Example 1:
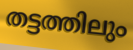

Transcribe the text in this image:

തട്ടത്തിലും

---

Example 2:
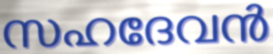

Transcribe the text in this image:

സഹദേവൻ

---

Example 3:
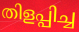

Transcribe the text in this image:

തിളപ്പിച്ച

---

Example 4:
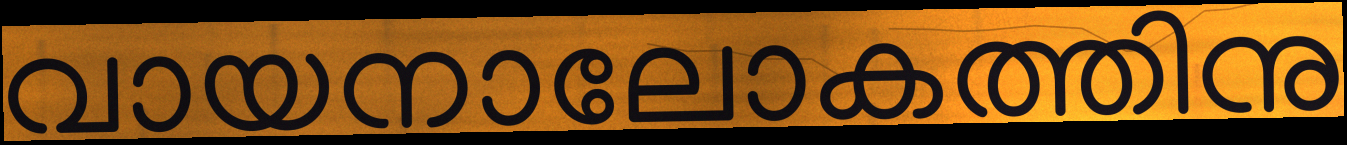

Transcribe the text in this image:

വായനാലോകത്തിനു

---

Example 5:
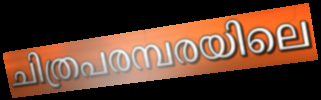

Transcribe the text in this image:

ചിത്രപരമ്പരയിലെ